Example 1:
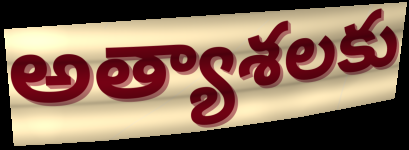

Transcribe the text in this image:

అత్యాశలకు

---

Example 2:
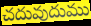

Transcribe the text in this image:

చదువుదుము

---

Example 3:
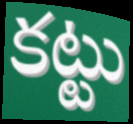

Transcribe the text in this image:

కట్టు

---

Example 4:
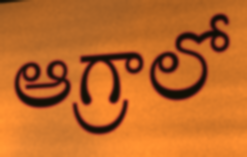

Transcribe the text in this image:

ఆగ్రాలో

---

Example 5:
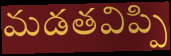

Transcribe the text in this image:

మడతవిప్పి